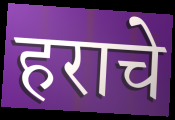
हराचे